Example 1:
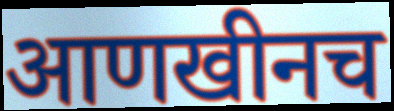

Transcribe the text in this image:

आणखीनच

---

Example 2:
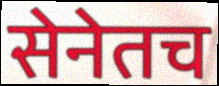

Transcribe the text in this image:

सेनेतच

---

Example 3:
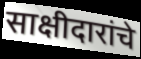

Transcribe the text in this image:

साक्षीदारांचे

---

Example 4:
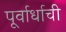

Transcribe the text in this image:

पूर्वार्धाची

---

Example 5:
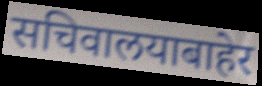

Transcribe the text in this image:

सचिवालयाबाहेर